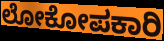
ಲೋಕೋಪಕಾರಿ